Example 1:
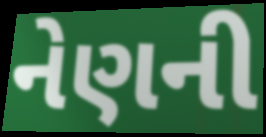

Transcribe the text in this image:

નેણની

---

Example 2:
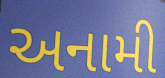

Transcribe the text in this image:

અનામી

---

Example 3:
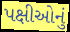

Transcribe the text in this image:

પક્ષીઓનું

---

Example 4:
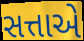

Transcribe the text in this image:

સત્તાએ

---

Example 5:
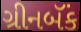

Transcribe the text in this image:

ગ્રીનબૅંક